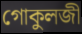
গোকুলজী